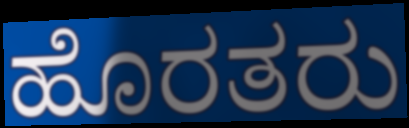
ಹೊರತರು